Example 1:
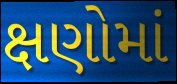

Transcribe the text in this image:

ક્ષણોમાં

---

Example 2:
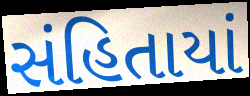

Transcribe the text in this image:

સંહિતાયાં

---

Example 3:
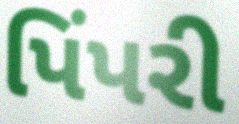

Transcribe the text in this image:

પિંપરી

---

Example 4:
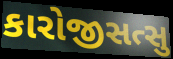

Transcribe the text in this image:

કારોજીસત્સુ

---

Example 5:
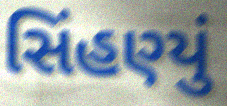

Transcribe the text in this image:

સિંહણ્યું